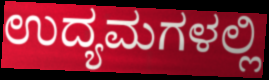
ಉದ್ಯಮಗಳಲ್ಲಿ